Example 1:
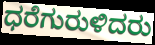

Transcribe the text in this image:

ಧರೆಗುರುಳಿದರು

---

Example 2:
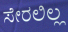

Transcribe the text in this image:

ಸೇರಲಿಲ್ಲ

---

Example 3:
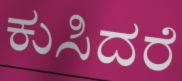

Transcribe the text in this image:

ಕುಸಿದರೆ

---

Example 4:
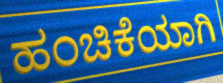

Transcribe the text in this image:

ಹಂಚಿಕೆಯಾಗಿ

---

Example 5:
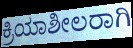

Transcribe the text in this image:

ಕ್ರಿಯಾಶೀಲರಾಗಿ